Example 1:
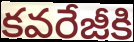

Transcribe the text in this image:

కవరేజీకి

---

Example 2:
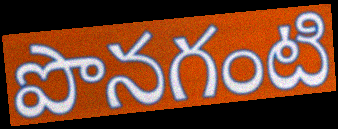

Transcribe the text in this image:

పొనగంటి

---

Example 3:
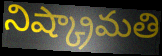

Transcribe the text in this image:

నిష్క్రామతి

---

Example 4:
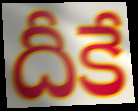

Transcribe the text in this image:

దీకే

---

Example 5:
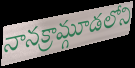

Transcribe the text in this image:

నానక్రామ్గూడలోని